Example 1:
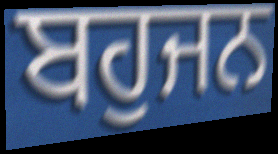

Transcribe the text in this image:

ਬਹੁਜਨ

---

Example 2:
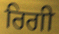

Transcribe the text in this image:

ਰਿਗੀ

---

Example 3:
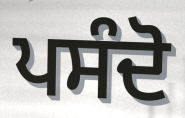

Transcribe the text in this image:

ਪਸੰਦੋ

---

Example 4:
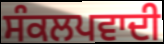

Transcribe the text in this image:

ਸੰਕਲਪਵਾਦੀ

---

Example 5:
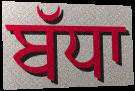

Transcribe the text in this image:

ਬੱਧਾ